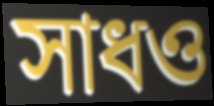
সাধও